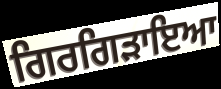
ਗਿਰਗਿੜਾਇਆ